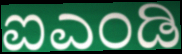
ಐಎಂಡಿ